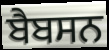
ਬੈਬਸਨ